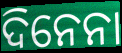
ଦିନେନା